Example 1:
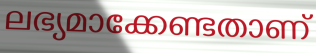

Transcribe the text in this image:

ലഭ്യമാക്കേണ്ടതാണ്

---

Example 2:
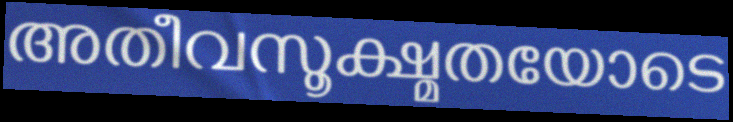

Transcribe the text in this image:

അതീവസൂക്ഷ്മതയോടെ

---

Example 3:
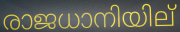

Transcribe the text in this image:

രാജധാനിയില്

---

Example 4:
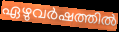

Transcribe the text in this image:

ഏഴുവർഷത്തിൽ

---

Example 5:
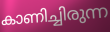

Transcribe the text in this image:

കാണിച്ചിരുന്ന